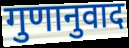
गुणानुवाद